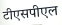
टीएसपीएल